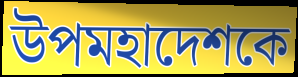
উপমহাদেশকে